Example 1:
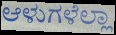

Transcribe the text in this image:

ಆಳುಗಳೆಲ್ಲಾ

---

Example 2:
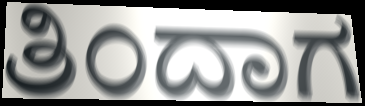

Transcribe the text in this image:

ತಿಂದಾಗ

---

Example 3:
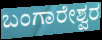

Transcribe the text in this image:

ಬಂಗಾರೇಶ್ವರ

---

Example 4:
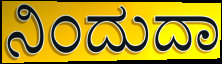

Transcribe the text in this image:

ನಿಂದುದಾ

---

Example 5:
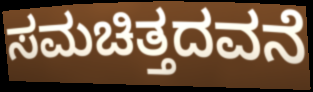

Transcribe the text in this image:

ಸಮಚಿತ್ತದವನೆ